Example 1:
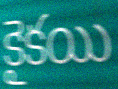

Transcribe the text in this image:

కైకయి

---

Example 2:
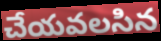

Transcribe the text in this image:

చేయవలసిన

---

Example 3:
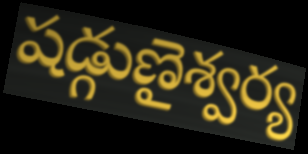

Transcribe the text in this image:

షడ్గుణైశ్వర్య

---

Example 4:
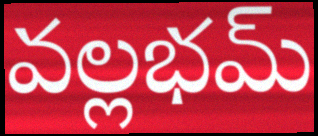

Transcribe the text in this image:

వల్లభమ్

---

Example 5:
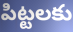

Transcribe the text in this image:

పిట్టలకు